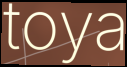
toya